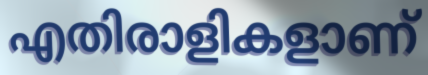
എതിരാളികളാണ്